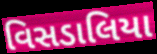
વિસડાલિયા